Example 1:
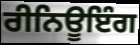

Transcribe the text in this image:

ਰੀਨਿਊਇੰਗ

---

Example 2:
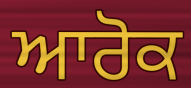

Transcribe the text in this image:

ਆਰੋਕ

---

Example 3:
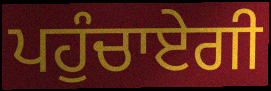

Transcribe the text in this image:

ਪਹੁੰਚਾਏਗੀ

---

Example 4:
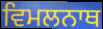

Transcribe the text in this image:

ਵਿਮਲਨਾਥ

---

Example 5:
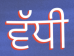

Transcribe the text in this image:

ਵੱਧੀ